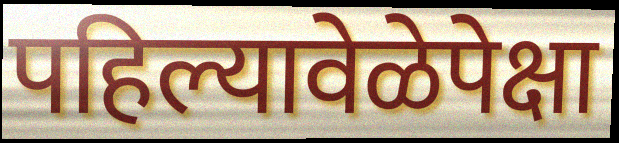
पहिल्यावेळेपेक्षा